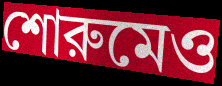
শোরুমেও